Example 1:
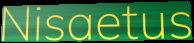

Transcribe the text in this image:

Nisaetus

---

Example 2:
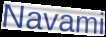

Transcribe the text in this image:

Navami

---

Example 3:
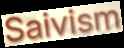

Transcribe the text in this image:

Saivism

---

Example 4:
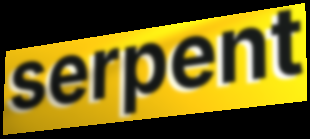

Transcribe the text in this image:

serpent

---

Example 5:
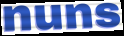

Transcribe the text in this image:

nuns